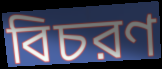
বিচরণ